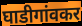
घाडीगांवकर